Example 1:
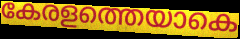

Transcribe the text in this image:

കേരളത്തെയാകെ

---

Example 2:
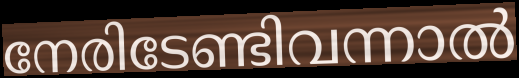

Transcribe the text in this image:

നേരിടേണ്ടിവന്നാൽ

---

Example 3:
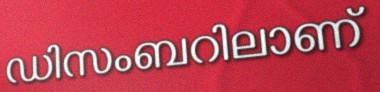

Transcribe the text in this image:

ഡിസംബറിലാണ്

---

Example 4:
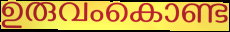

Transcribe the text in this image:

ഉരുവംകൊണ്ട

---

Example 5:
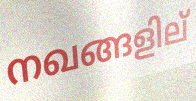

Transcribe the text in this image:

നഖങ്ങളില്